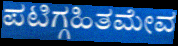
ಪಟಿಗ್ಗಹಿತಮೇವ